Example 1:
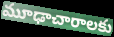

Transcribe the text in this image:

మూఢాచారాలకు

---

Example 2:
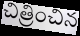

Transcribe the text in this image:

చిత్రించిన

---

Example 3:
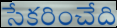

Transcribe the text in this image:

సేకరించేది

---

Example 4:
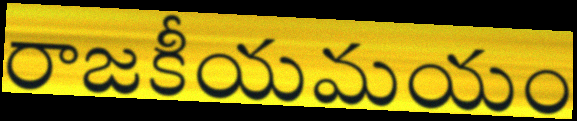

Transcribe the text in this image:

రాజకీయమయం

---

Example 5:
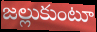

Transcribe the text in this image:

జల్లుకుంటూ